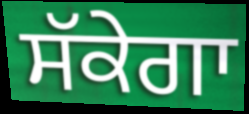
ਸੱਕੇਗਾ